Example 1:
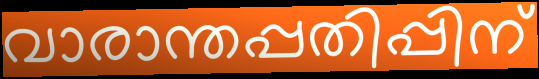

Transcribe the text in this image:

വാരാന്തപ്പതിപ്പിന്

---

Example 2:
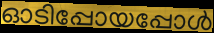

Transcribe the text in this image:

ഓടിപ്പോയപ്പോൾ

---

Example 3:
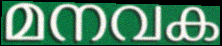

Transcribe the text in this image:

മനവക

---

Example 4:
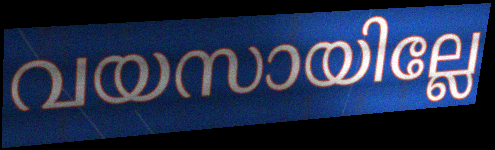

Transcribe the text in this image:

വയസായില്ലേ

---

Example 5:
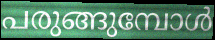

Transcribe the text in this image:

പരുങ്ങുമ്പോൾ